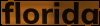
florida